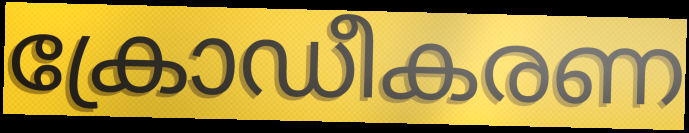
ക്രോഡീകരണ